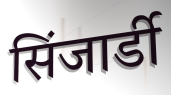
सिंजार्डी